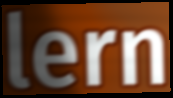
lern